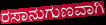
ರಸಾನುಗುಣವಾಗಿ